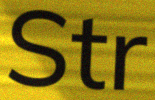
Str